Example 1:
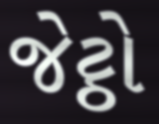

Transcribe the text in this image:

જેટ્ઠો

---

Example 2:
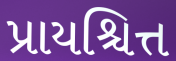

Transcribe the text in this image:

પ્રાયશ્ચિત્ત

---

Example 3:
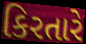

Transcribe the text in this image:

કિરતારે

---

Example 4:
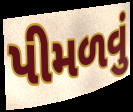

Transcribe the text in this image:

પીમળવું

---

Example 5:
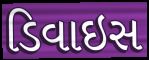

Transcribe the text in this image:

ડિવાઇસ